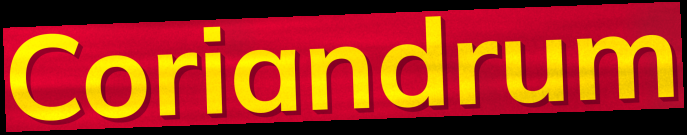
Coriandrum